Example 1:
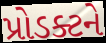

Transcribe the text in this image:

પ્રોડક્ટને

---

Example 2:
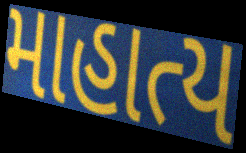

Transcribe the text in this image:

માહાત્ય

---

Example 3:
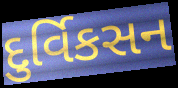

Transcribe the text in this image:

દુર્વિકસન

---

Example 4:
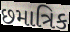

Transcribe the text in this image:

છમાત્રિક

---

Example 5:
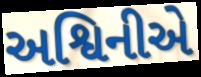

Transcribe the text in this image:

અશ્વિનીએ